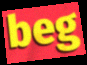
beg